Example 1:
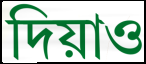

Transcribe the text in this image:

দিয়াও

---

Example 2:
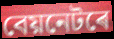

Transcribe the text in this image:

বেয়নেটৰে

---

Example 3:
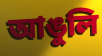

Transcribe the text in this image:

আঙুলি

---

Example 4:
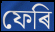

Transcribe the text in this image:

ফেৰি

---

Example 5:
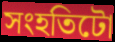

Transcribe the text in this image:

সংহতিটো